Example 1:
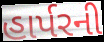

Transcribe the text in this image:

હાર્પરની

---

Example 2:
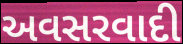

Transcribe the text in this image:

અવસરવાદી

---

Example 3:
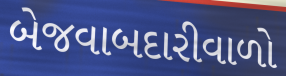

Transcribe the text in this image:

બેજવાબદારીવાળો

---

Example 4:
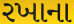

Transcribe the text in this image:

રખાના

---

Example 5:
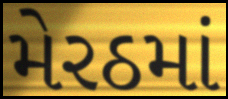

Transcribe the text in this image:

મેરઠમાં